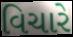
વિચારે